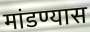
मांडण्यास